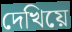
দেখিয়ে